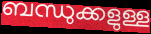
ബന്ധുക്കളുള്ള